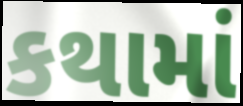
કથામાં